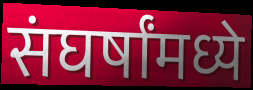
संघर्षांमध्ये